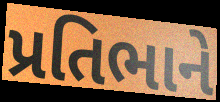
પ્રતિભાને